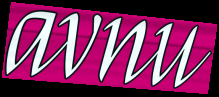
avnu